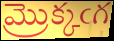
మ్రొక్కఁగ